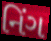
નિંગ